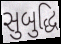
સુબુદ્ધિ